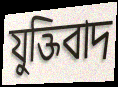
যুক্তিবাদ